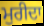
ਮੁਰੀਦਾ